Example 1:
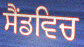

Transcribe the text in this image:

ਸੈਂਡਵਿਚ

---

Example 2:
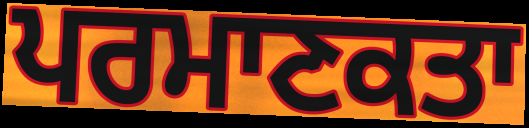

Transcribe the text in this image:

ਪਰਮਾਣਕਤਾ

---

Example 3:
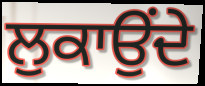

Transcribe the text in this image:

ਲੁਕਾਉਂਦੇ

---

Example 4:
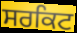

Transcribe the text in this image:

ਸਰਕਿਟ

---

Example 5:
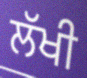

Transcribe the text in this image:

ਲੱਖੀ